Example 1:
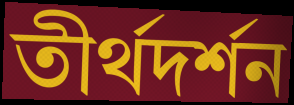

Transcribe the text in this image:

তীর্থদর্শন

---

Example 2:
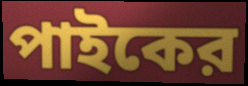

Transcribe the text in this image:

পাইকের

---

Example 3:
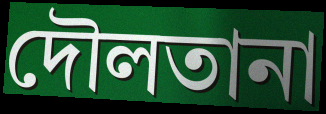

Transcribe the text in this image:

দৌলতানা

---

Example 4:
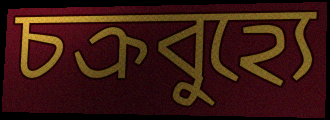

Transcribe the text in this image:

চক্রবুহ্যে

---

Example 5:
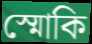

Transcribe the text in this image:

স্মোকি